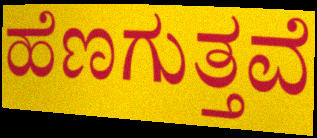
ಹೆಣಗುತ್ತವೆ